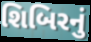
શિબિરનું